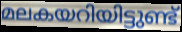
മലകയറിയിട്ടുണ്ട്